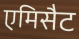
एमिसैट